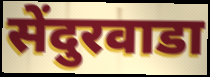
सेंदुरवाडा